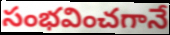
సంభవించగానే